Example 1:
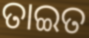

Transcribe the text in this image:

ତାଇତ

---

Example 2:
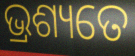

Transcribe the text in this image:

ଭ୍ରଶ୍ୟତେ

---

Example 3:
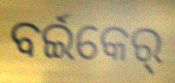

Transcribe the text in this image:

ବର୍ଇକେର୍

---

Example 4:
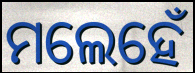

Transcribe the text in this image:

ମଲେହେଁ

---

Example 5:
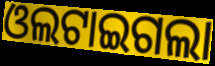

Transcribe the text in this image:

ଓଲଟାଇଗଲା